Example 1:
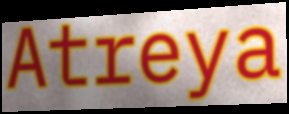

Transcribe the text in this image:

Atreya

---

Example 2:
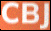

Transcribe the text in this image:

CBJ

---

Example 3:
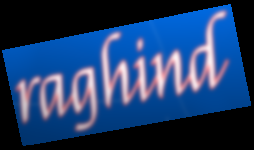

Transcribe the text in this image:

raghind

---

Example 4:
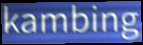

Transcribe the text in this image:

kambing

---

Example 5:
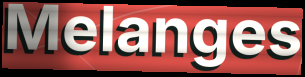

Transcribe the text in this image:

Melanges